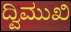
ದ್ವಿಮುಖಿ